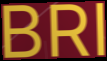
BRI